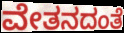
ವೇತನದಂತೆ